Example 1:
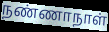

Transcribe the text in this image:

நண்ணாநாள்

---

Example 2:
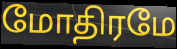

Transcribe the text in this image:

மோதிரமே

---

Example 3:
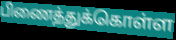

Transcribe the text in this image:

பிணைத்துக்கொள்ள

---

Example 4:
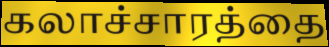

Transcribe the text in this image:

கலாச்சாரத்தை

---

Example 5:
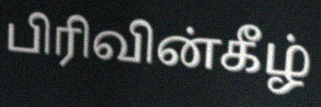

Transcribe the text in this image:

பிரிவின்கீழ்